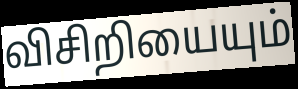
விசிறியையும்